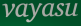
vayasu